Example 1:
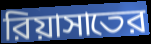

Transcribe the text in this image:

রিয়াসাতের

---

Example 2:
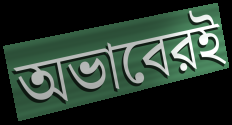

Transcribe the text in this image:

অভাবেরই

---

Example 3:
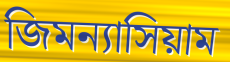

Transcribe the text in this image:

জিমন্যাসিয়াম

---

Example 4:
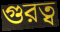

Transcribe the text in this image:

গুরত্ব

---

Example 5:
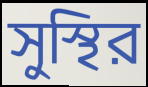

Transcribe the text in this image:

সুস্থির